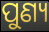
ପୁଣ୍ୟ